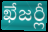
ఖేజర్లీ